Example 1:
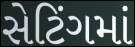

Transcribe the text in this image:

સેટિંગમાં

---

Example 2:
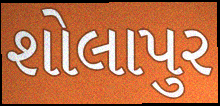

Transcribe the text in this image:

શોલાપુર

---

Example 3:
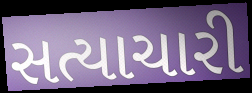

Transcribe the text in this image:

સત્યાચારી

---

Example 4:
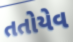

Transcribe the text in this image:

તતોયેવ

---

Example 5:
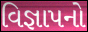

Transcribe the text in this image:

વિજ્ઞાપનો